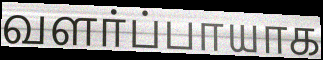
வளர்ப்பாயாக